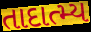
તાદાત્મ્ય